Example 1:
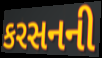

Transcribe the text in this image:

કરસનની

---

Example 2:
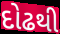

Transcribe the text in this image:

દોઢથી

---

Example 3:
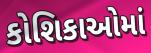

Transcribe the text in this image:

કોશિકાઓમાં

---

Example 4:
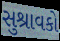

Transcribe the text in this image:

સુશ્રાવકો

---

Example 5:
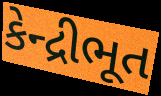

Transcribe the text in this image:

કેન્દ્રીભૂત